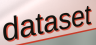
dataset